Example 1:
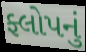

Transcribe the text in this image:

ફ્લોપનું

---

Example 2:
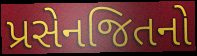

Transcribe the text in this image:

પ્રસેનજિતનો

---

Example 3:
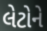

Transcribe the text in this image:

લેટોને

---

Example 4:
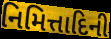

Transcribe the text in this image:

નિમિત્તાદિની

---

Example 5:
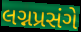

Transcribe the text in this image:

લગ્નપ્રસંગે